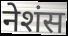
नेशंस